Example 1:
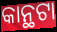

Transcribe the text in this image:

କାନ୍ଥଟା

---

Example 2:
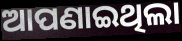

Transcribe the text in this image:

ଆପଣାଇଥିଲା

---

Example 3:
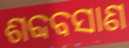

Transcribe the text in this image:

ଶବ୍ଦବସାଣ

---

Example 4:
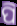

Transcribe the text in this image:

ପି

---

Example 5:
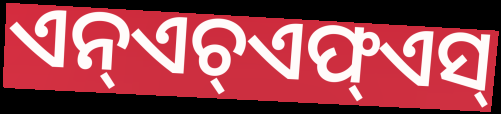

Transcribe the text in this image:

ଏନ୍ଏଚ୍ଏଫ୍ଏସ୍